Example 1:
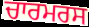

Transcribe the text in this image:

ਚਾਰਮਰਸ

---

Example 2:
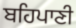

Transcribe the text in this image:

ਬਹਿਪਾਣੀ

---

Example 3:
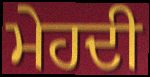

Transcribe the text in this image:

ਮੇਹਦੀ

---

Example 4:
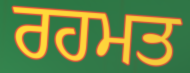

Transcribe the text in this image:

ਰਹਮਤ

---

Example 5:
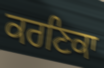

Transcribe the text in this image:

ਕਰਣਿਕਾ